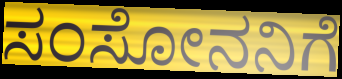
ಸಂಸೋನನಿಗೆ